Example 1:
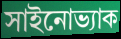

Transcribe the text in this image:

সাইনোভ্যাক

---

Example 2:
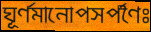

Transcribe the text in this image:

ঘূর্ণমানোপসর্পণৈঃ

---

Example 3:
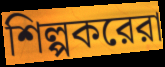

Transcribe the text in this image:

শিল্পকরেরা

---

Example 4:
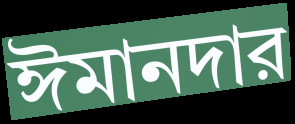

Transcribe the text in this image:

ঈমানদার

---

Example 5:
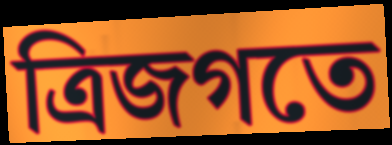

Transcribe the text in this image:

ত্রিজগতে